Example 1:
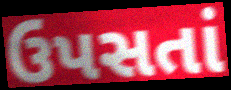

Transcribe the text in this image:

ઉપસતાં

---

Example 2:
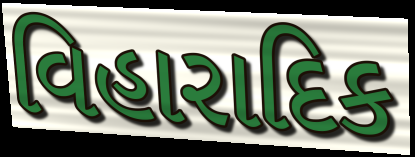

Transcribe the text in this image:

વિહારાદિક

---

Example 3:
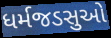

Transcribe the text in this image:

ધર્મજડસુઓ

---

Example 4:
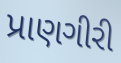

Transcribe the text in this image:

પ્રાણગીરી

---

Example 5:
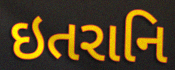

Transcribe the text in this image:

ઇતરાનિ